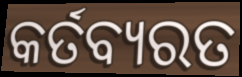
କର୍ତବ୍ୟରତ